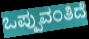
ಒಪ್ಪುವಂತಿದೆ